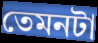
তেমনটা